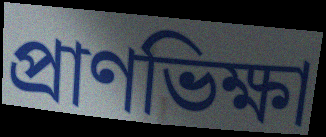
প্রাণভিক্ষা